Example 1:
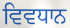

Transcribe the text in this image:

ਵਿਵਧਾਨ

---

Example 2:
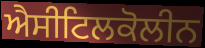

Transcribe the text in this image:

ਐਸੀਟਿਲਕੋਲੀਨ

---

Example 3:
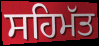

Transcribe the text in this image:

ਸਹਿਮੱਤ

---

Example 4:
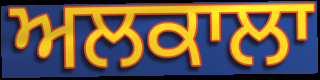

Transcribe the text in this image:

ਅਲਕਾਲਾ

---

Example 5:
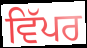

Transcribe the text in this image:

ਵਿੱਪਰ